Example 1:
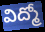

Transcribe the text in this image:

విద్మో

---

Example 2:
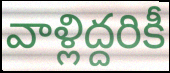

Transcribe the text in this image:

వాళ్లిద్దరికీ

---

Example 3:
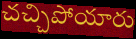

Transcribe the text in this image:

చచ్చిపోయారు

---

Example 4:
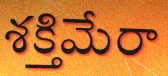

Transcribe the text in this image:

శక్తిమేరా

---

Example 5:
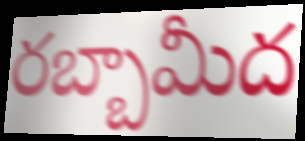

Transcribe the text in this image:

రబ్బామీద